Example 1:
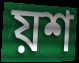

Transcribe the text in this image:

য়শ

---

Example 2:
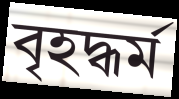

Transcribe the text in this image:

বৃহদ্ধৰ্ম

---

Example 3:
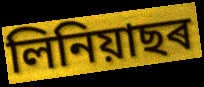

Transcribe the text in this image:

লিনিয়াছৰ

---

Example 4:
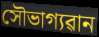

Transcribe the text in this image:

সৌভাগ্যৱান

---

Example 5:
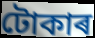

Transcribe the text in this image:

টোকাৰ